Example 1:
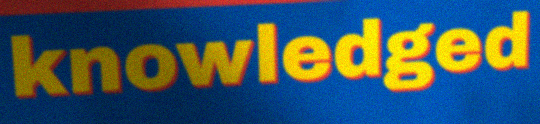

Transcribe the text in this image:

knowledged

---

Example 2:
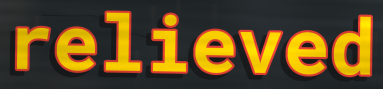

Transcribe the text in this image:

relieved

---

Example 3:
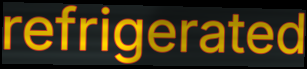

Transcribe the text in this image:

refrigerated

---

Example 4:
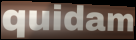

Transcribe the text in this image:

quidam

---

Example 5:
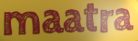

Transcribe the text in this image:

maatra